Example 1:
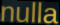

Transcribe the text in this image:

nulla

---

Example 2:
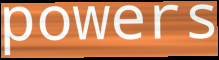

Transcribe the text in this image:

powers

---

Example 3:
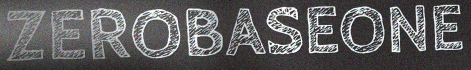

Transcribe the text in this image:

ZEROBASEONE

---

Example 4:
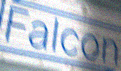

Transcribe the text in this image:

Falcon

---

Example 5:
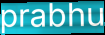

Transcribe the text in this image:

prabhu